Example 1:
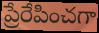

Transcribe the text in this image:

ప్రేరేపించగా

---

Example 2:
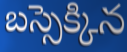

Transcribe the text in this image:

బస్సెక్కిన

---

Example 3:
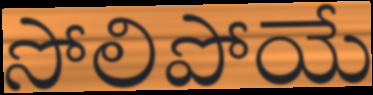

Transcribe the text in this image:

సోలిపోయే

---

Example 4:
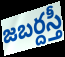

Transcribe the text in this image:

జబర్దస్తీ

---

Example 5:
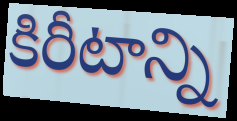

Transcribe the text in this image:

కిరీటాన్ని